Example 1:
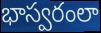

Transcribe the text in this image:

భాస్వరంలా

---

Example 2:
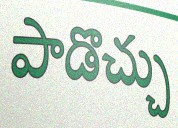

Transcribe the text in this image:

పాడొచ్చు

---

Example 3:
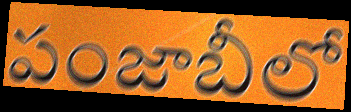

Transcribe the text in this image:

పంజాబీలో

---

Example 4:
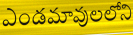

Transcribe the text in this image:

ఎండమావులలోని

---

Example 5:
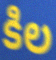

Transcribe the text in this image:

కిల